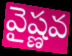
వైష్ణవ